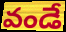
వండే